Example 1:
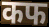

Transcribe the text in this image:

कफ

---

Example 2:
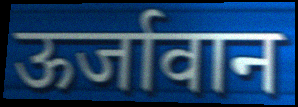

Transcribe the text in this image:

ऊर्जावान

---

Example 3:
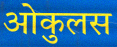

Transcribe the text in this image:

ओकुलस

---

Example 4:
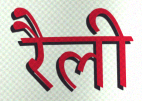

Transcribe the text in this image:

रैली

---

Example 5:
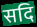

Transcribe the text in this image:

सदि